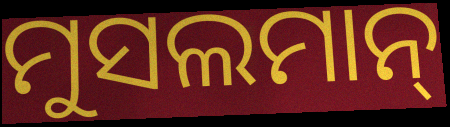
ମୁସଲମାନ୍